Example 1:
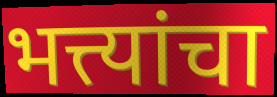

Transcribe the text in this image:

भत्त्यांचा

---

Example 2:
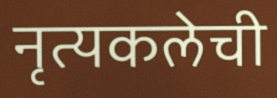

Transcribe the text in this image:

नृत्यकलेची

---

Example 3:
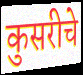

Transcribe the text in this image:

कुसरीचे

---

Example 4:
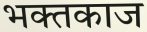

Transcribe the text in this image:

भक्तकाज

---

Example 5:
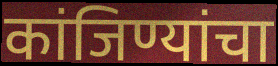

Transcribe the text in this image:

कांजिण्यांचा